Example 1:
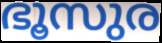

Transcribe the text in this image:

ഭൂസുര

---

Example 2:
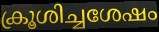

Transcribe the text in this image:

ക്രൂശിച്ചശേഷം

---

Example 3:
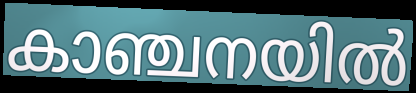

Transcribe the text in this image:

കാഞ്ചനയിൽ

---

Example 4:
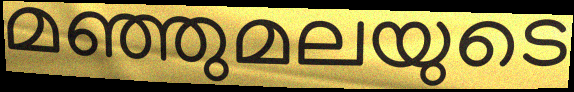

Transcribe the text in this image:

മഞ്ഞുമലയുടെ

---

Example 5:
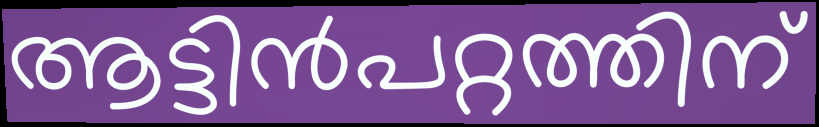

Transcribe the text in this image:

ആട്ടിൻപറ്റത്തിന്